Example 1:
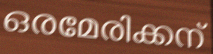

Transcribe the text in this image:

ഒരമേരിക്കന്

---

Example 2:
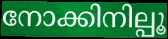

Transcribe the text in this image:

നോക്കിനില്പൂ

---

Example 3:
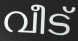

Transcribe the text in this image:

വീട്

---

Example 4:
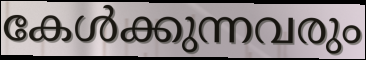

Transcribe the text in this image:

കേൾക്കുന്നവരും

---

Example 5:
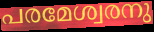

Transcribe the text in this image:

പരമേശ്വരനു